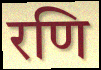
रणि